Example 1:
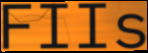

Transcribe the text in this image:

FIIs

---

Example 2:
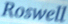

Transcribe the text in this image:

Roswell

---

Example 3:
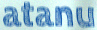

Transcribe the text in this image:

atanu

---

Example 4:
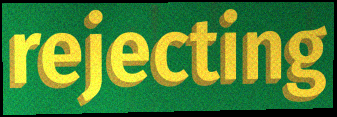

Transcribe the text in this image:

rejecting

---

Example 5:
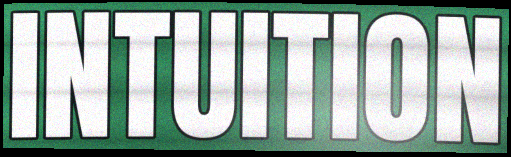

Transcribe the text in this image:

INTUITION